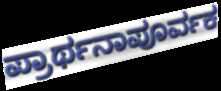
ಪ್ರಾರ್ಥನಾಪೂರ್ವಕ